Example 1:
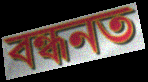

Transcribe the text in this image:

বন্ধনত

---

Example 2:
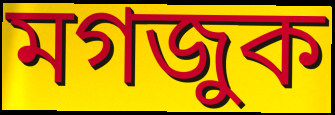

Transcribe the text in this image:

মগজুক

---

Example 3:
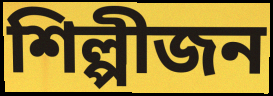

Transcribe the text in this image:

শিল্পীজন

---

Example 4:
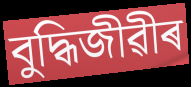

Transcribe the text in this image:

বুদ্ধিজীৱীৰ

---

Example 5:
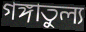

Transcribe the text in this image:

গঙ্গাতুল্য